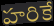
హరికే